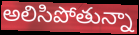
అలిసిపోతున్నా